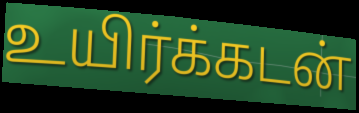
உயிர்க்கடன்